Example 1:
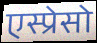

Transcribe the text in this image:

एस्प्रेसो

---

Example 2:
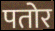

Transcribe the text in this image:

पतोर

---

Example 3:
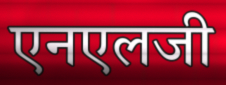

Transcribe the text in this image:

एनएलजी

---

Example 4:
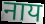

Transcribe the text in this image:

नाय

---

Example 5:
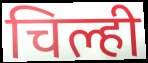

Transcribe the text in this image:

चिल्ही